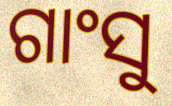
ଗାଂସୁ